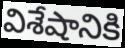
విశేషానికి